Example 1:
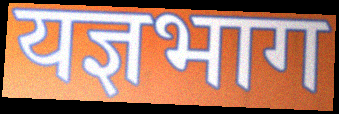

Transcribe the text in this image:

यज्ञभाग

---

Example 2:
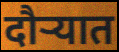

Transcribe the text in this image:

दौऱ्यात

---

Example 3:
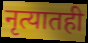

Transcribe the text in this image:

नृत्यातही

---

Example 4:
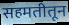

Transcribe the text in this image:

सहमतीतून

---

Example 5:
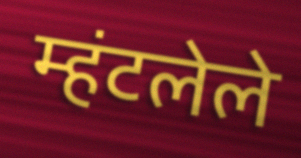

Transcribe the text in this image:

म्हंटलेले